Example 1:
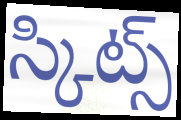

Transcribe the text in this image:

స్కిట్స్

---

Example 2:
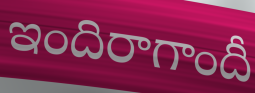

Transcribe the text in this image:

ఇందిరాగాందీ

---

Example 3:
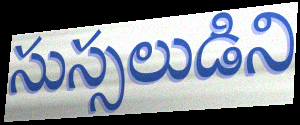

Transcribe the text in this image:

సుస్సలుడిని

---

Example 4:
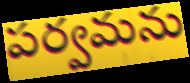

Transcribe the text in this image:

పర్వమను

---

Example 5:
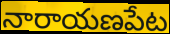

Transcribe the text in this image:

నారాయణపేట